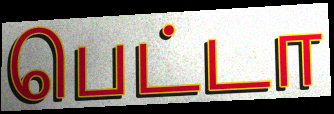
பெட்டா